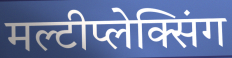
मल्टीप्लेक्सिंग